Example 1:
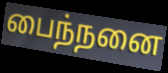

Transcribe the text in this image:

பைந்நனை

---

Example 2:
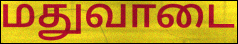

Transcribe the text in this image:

மதுவாடை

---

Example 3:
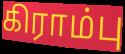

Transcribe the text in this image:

கிராம்பு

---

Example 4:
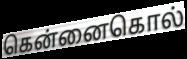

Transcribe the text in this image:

கென்னைகொல்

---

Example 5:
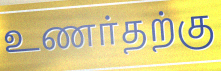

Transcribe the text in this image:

உணர்தற்கு